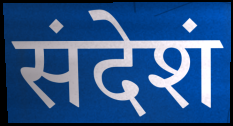
संदेशं